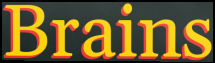
Brains